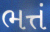
ભત્તં